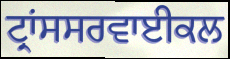
ਟ੍ਰਾਂਸਸਰਵਾਈਕਲ